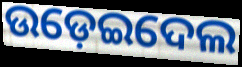
ଉଡ଼େଇଦେଲ